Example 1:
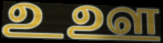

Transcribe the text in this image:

உஊ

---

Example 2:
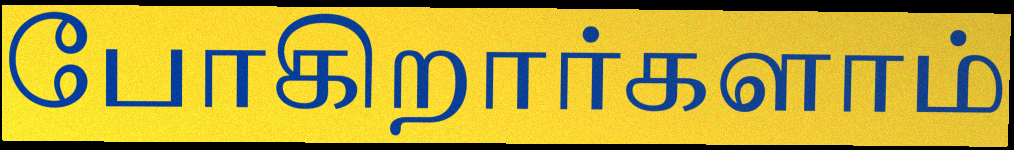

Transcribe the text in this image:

போகிறார்களாம்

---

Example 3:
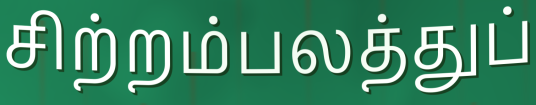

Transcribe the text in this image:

சிற்றம்பலத்துப்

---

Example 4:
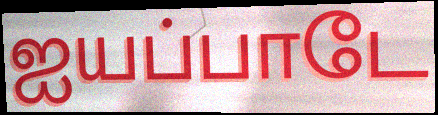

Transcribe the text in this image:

ஐயப்பாடே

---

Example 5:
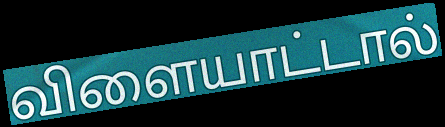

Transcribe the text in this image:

விளையாட்டால்